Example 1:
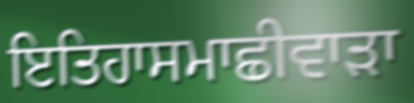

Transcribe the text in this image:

ਇਤਿਹਾਸਮਾਛੀਵਾੜਾ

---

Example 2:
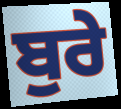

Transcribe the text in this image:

ਬੁਰੇ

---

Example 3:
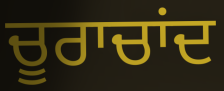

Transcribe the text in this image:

ਚੂਰਾਚਾਂਦ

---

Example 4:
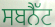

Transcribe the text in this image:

ਸਬਨੈੱਟ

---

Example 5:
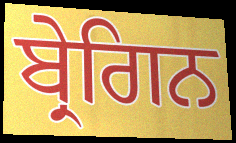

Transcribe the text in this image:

ਬ੍ਰੇਗਿਨ